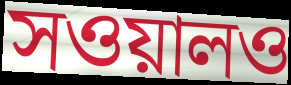
সওয়ালও